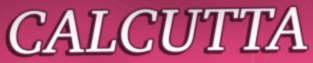
CALCUTTA